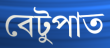
বেটুপাত